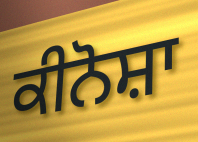
ਕੀਨੋਸ਼ਾ